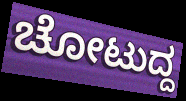
ಚೋಟುದ್ದ